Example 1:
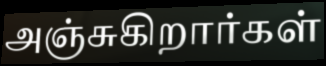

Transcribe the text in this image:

அஞ்சுகிறார்கள்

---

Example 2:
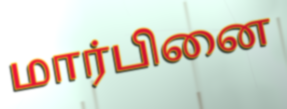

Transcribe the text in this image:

மார்பினை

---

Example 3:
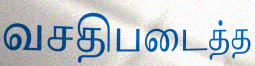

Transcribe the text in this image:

வசதிபடைத்த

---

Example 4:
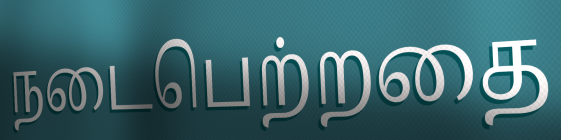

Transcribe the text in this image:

நடைபெற்றதை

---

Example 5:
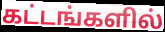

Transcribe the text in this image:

கட்டங்களில்